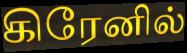
கிரேனில்